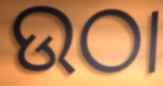
ଉଠା